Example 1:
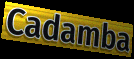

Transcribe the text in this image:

Cadamba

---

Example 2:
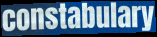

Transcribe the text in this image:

constabulary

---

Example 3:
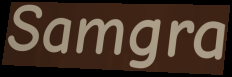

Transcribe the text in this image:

Samgra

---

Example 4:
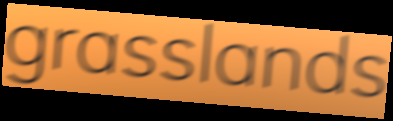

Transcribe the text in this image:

grasslands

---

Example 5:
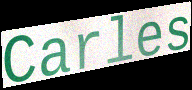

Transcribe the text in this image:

Carles